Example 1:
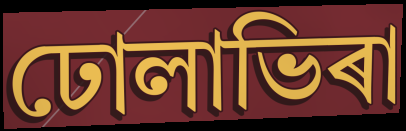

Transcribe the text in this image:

ঢোলাভিৰা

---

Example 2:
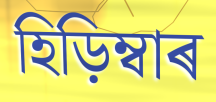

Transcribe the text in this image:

হিড়িম্বাৰ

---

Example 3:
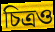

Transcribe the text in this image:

চিত্ৰও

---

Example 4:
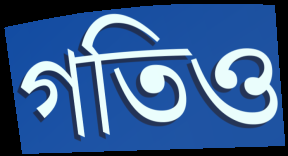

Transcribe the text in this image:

গতিও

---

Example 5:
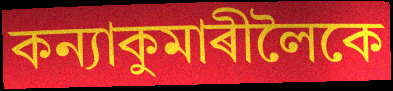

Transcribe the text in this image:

কন্যাকুমাৰীলৈকে